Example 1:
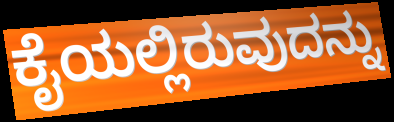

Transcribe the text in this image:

ಕೈಯಲ್ಲಿರುವುದನ್ನು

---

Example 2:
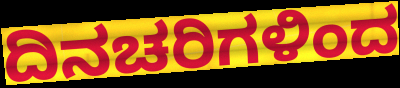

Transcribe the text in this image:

ದಿನಚರಿಗಳಿಂದ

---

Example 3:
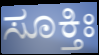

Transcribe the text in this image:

ಸೂಕ್ತಿಃ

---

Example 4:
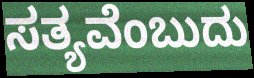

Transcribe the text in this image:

ಸತ್ಯವೆಂಬುದು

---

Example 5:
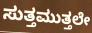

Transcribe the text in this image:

ಸುತ್ತಮುತ್ತಲೇ